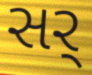
સર્